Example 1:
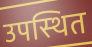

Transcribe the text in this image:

उपस्थित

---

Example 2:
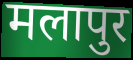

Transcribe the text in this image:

मलापुर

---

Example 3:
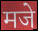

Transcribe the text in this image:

मजे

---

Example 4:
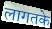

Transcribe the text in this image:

लागतके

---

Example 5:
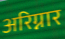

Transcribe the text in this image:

अरिग्नार